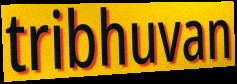
tribhuvan